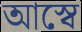
আস্বে